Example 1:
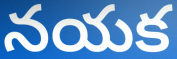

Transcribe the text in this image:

నయక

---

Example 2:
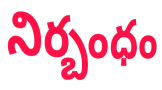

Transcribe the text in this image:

నిర్బంధం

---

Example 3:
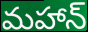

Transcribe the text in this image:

మహాన్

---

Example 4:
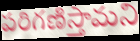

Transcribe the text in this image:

పరిగణిస్తామని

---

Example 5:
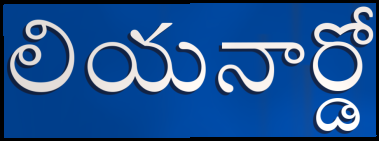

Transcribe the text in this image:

లియనార్డో